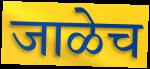
जाळेच